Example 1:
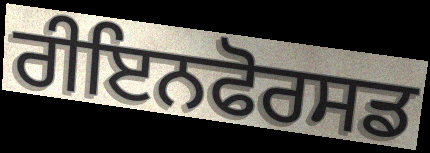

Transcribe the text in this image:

ਰੀਇਨਫੋਰਸਡ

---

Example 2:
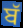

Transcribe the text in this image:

ਬੱ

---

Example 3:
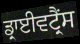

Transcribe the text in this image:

ਡ੍ਰਾਈਵਟ੍ਰੈਂਸ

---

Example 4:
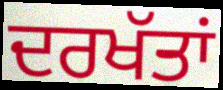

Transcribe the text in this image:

ਦਰਖੱਤਾਂ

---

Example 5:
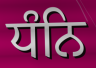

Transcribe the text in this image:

ਧੰਨਿ